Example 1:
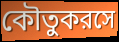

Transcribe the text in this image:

কৌতুকরসে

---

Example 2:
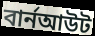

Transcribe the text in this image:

বার্নআউট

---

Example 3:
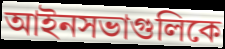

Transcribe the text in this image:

আইনসভাগুলিকে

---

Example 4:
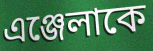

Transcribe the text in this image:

এঞ্জেলাকে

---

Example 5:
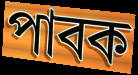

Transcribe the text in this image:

পাবক